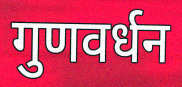
गुणवर्धन